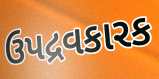
ઉપદ્રવકારક